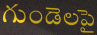
గుండెలపై